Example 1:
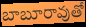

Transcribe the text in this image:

బాబూరావుతో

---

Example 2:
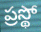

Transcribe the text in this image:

ప్రస్థో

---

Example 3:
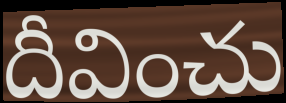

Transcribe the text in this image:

దీవించు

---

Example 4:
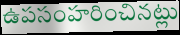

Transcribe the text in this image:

ఉపసంహరించినట్లు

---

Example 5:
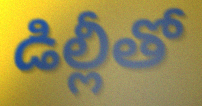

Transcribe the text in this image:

డిల్లీతో